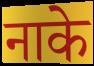
नाके